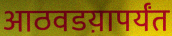
आठवडय़ापर्यंत